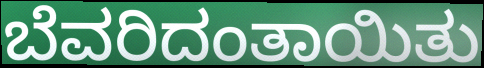
ಬೆವರಿದಂತಾಯಿತು